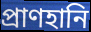
প্রাণহানি